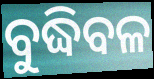
ବୁଦ୍ଧିବଳ